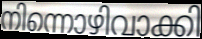
നിന്നൊഴിവാക്കി